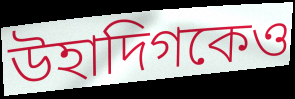
উহাদিগকেও